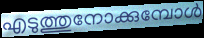
എടുത്തുനോക്കുമ്പോൾ